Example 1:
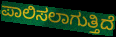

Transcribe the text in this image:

ಪಾಲಿಸಲಾಗುತ್ತಿದೆ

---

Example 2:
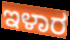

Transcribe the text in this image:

ಇಳಾರ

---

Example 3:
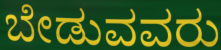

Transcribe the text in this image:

ಬೇಡುವವರು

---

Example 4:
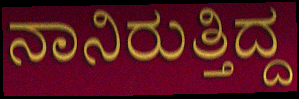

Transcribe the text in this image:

ನಾನಿರುತ್ತಿದ್ದ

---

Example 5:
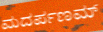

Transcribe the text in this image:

ಮದರ್ಪಣಮ್